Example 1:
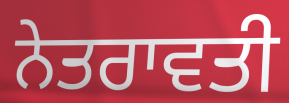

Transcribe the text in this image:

ਨੇਤਰਾਵਤੀ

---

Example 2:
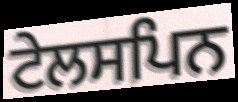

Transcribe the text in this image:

ਟੇਲਸਪਿਨ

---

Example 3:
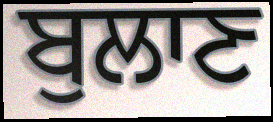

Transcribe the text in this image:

ਬੁਲਾਣ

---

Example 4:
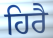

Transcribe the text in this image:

ਹਿਰੈ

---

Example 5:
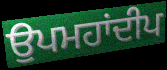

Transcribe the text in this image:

ਉਪਮਹਾਂਦੀਪ